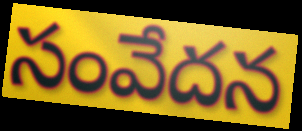
సంవేదన